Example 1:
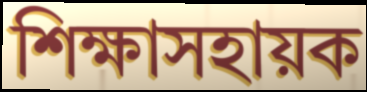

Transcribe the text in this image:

শিক্ষাসহায়ক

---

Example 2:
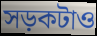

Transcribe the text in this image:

সড়কটাও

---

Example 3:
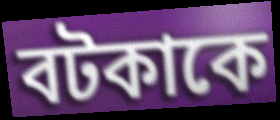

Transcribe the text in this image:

বটকাকে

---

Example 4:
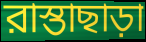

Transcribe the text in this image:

রাস্তাছাড়া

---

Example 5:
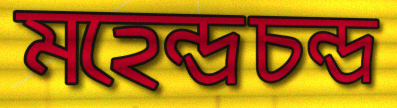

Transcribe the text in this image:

মহেন্দ্রচন্দ্র